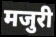
मजुरी